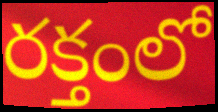
రక్తంలో